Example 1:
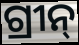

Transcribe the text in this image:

ଗ୍ରୀନ୍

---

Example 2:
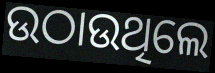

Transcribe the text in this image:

ଉଠାଉଥିଲେ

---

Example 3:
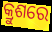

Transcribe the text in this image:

କ୍ରୁଶରେ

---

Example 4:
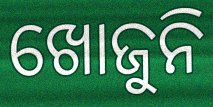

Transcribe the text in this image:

ଖୋଜୁନି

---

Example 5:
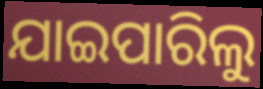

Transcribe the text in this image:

ଯାଇପାରିଲୁ